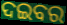
ଦଇବର